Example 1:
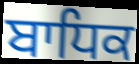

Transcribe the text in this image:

ਬਾਧਿਕ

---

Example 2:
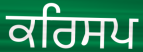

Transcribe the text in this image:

ਕਰਿਸਪ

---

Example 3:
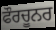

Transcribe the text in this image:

ਫੌਰਚੂਨਰ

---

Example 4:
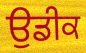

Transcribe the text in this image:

ਉਡੀਕ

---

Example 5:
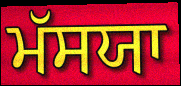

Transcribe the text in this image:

ਮੱਸਯਾ